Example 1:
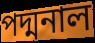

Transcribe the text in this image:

পদ্মনাল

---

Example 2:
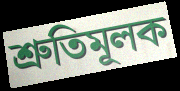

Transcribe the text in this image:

শ্রুতিমূলক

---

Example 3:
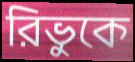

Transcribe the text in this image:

রিভুকে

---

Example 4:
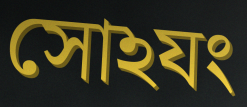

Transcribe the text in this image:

সোঽযং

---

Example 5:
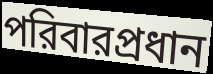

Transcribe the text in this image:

পরিবারপ্রধান